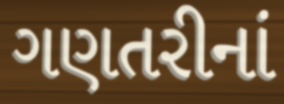
ગણતરીનાં